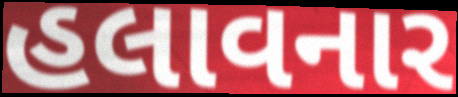
હલાવનાર